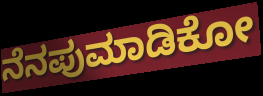
ನೆನಪುಮಾಡಿಕೋ